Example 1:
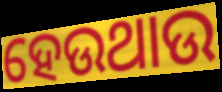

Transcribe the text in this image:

ହେଉଥାଉ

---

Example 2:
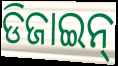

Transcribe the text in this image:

ଡିଜାଇନ୍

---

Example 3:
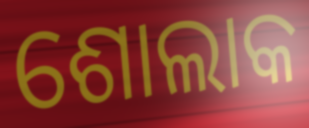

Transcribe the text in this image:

ଶୋଲାକ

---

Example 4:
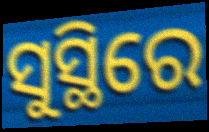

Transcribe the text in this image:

ସୁସ୍ଥିରେ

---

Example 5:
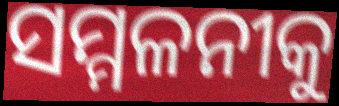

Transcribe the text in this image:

ସମ୍ମଳନୀକୁ